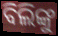
ବିଲିଙ୍କୁ